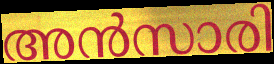
അൻസാരി